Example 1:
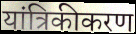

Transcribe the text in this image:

यांत्रिकीकरण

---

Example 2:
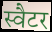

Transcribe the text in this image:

स्वैटर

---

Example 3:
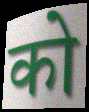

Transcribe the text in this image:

को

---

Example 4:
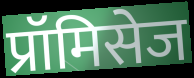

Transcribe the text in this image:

प्रॉमिसेज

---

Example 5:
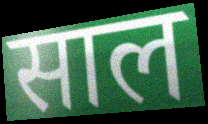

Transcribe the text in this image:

साल